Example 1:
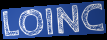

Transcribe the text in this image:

LOINC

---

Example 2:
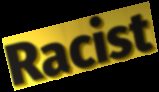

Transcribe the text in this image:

Racist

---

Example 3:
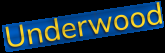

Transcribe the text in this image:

Underwood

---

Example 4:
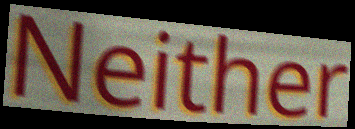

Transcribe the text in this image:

Neither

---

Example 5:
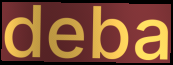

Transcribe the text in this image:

deba